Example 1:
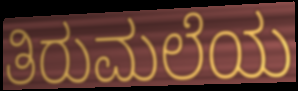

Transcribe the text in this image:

ತಿರುಮಲೆಯ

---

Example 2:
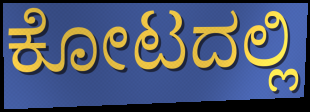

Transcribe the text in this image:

ಕೋಟದಲ್ಲಿ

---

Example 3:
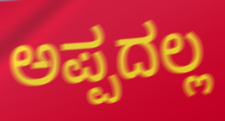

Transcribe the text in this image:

ಅಪ್ಪದಲ್ಲ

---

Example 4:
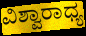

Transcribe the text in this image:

ವಿಶ್ವಾರಾಧ್ಯ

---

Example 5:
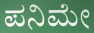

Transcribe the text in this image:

ಪನಿಮೇ